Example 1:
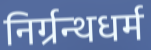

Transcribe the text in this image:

निर्ग्रन्थधर्म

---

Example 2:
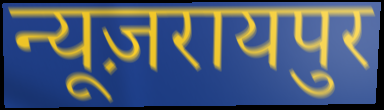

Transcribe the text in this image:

न्यूज़रायपुर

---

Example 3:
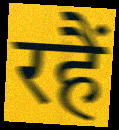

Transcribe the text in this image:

रहैं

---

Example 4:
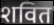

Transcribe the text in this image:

शवित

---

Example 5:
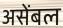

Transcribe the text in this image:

असेंबल